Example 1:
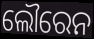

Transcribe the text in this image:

ଲୌରେନ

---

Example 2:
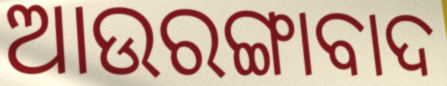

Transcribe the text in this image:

ଆଉରଙ୍ଗାବାଦ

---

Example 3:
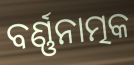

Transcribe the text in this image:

ବର୍ଣ୍ଣନାତ୍ମକ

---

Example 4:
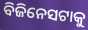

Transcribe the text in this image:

ବିଜିନେସଟାକୁ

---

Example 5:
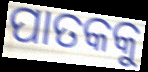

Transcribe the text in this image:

ପାତକକୁ